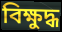
বিক্ষুদ্ধ